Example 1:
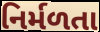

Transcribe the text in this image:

નિર્મળતા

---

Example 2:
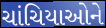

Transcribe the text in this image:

ચાંચિયાઓને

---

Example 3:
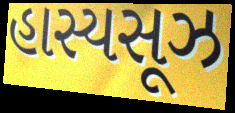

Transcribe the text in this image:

હાસ્યસૂઝ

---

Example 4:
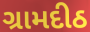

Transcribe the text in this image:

ગ્રામદીઠ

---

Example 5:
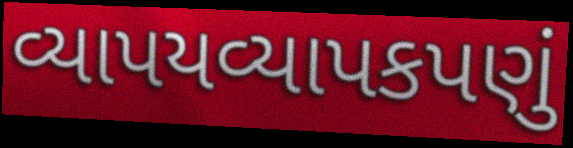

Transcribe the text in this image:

વ્યાપયવ્યાપકપણું